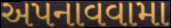
અપનાવવામા